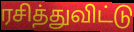
ரசித்துவிட்டு